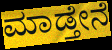
ಮಾಡ್ತೇನೆ